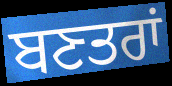
ਬਣਤਰਾਂ